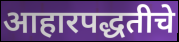
आहारपद्धतीचे